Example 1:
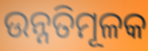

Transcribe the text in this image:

ଉନ୍ନତିମୂଳକ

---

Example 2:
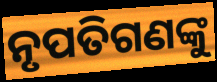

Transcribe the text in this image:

ନୃପତିଗଣଙ୍କୁ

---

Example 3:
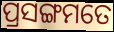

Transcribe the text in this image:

ପ୍ରସଙ୍ଗମତେ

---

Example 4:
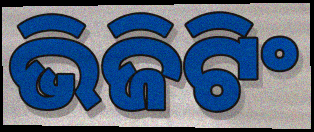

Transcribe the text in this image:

ଭିଜିଟିଂ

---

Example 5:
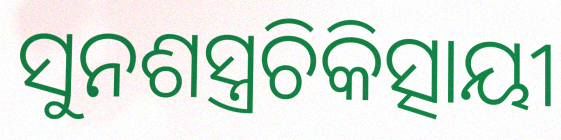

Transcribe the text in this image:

ସୁନଶସ୍ତ୍ରଚିକିତ୍ସାୟୀ